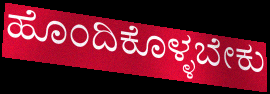
ಹೊಂದಿಕೊಳ್ಳಬೇಕು